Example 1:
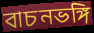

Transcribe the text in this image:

বাচনভঙ্গি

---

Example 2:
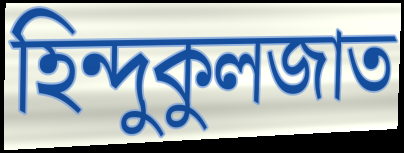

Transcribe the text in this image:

হিন্দুকুলজাত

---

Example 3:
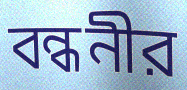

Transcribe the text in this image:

বন্ধনীর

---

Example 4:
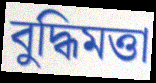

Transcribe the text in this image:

বুদ্ধিমত্তা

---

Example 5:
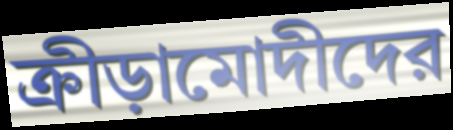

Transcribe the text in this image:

ক্রীড়ামোদীদের